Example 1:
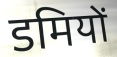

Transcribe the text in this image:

डमियों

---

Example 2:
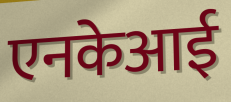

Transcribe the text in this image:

एनकेआई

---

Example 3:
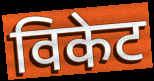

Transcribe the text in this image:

विकेट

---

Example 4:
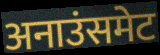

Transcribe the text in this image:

अनाउंसमेट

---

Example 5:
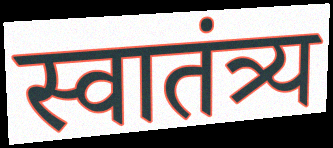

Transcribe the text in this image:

स्वातंत्र्य